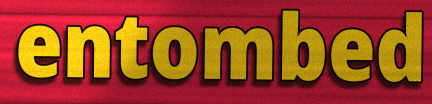
entombed